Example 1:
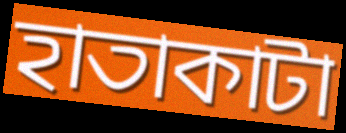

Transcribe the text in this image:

হাতাকাটা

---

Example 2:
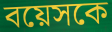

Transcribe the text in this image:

বয়েসকে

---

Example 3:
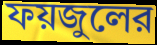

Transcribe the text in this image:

ফয়জুলের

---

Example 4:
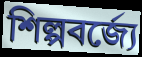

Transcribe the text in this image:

শিল্পবর্জ্যে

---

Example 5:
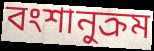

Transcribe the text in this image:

বংশানুক্রম